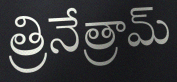
త్రినేత్రామ్